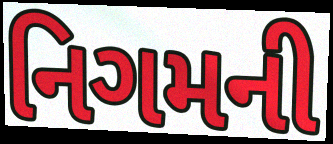
નિગમની